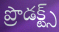
ప్రొడక్ట్స్